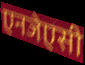
एनजेएसी